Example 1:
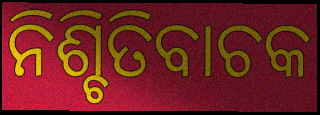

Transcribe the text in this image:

ନିଶ୍ଚିତିବାଚକ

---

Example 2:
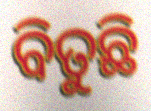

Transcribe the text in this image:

ବିତୁଛି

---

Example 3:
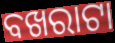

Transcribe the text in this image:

ବଖରାଟା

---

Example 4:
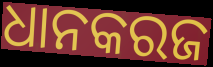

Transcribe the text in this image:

ଧାନକରଜ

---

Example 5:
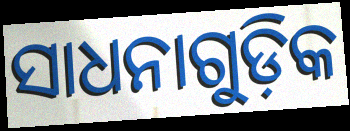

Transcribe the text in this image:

ସାଧନାଗୁଡ଼ିକ